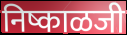
निष्काळजी